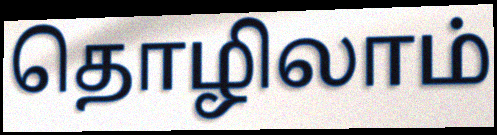
தொழிலாம்